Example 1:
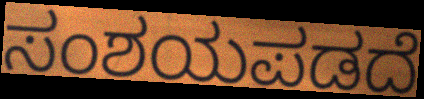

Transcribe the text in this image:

ಸಂಶಯಪಡದೆ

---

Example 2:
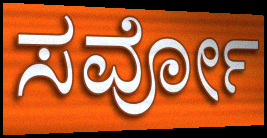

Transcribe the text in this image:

ಸರ್ವೋ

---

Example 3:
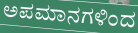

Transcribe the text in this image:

ಅಪಮಾನಗಳಿಂದ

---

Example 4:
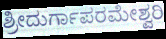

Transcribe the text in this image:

ಶ್ರೀದುರ್ಗಾಪರಮೇಶ್ವರಿ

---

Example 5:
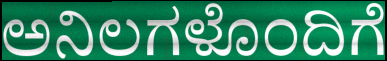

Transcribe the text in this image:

ಅನಿಲಗಳೊಂದಿಗೆ